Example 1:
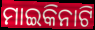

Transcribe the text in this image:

ମାଇକିନାଟି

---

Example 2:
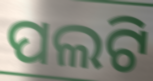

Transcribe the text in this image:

ପଲଟି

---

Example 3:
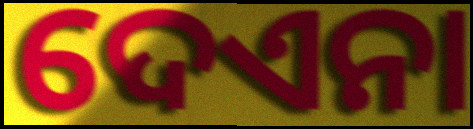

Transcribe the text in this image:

ଦେଏନା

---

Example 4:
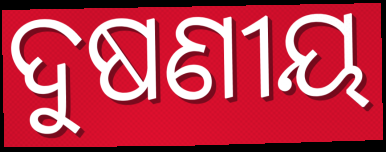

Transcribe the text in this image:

ଦୁଷଣୀୟ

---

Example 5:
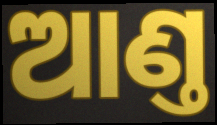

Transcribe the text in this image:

ଆଣ୍ତ